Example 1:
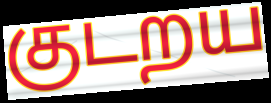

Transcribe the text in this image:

குடறய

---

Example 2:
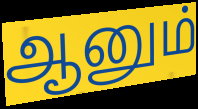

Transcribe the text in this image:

ஆனும்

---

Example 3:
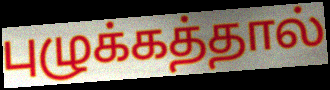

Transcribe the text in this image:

புழுக்கத்தால்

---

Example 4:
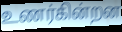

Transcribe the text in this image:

உணர்கின்றன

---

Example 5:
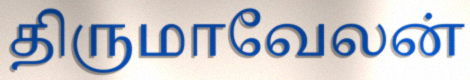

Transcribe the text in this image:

திருமாவேலன்